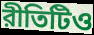
রীতিটিও